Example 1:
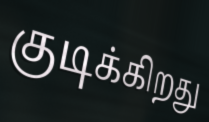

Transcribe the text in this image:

குடிக்கிறது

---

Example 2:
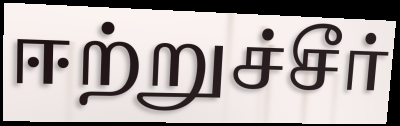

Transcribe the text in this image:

ஈற்றுச்சீர்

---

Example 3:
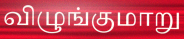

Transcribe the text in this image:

விழுங்குமாறு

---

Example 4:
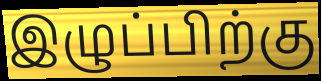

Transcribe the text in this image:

இழுப்பிற்கு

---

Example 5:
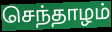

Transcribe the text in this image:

செந்தாழம்